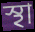
স্থা